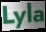
Lyla